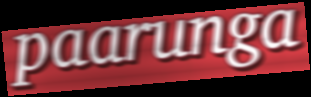
paarunga